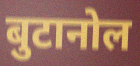
बुटानोल